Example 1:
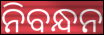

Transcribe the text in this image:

ନିବନ୍ଧନ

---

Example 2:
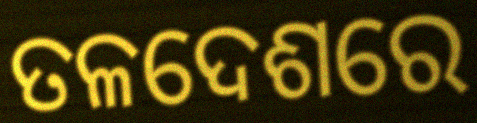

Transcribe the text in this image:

ତଳଦେଶରେ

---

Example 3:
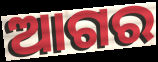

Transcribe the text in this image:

ଆଗର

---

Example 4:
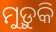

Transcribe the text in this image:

ମୁଡ଼ୁକି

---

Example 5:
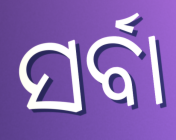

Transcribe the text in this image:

ସର୍ବା